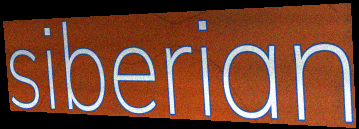
siberian